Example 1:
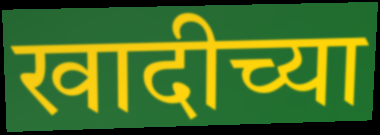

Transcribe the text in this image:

खादीच्या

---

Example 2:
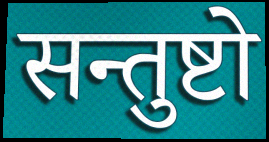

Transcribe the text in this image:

सन्तुष्टो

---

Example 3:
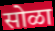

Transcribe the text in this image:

सोळा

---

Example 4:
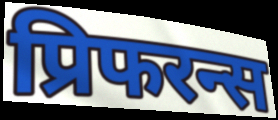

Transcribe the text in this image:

प्रिफरन्स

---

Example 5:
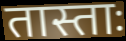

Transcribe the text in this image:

तास्ताः